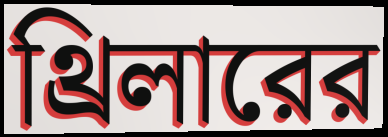
থ্রিলারের